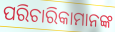
ପରିଚାରିକାମାନଙ୍କ